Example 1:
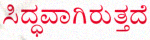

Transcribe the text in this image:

ಸಿದ್ಧವಾಗಿರುತ್ತದೆ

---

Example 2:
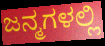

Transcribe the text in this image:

ಜನ್ಮಗಳಲ್ಲಿ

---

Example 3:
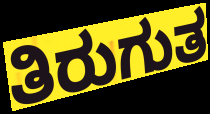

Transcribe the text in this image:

ತಿರುಗುತ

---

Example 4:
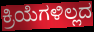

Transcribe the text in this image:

ಕ್ರಿಯೆಗಳಿಲ್ಲದ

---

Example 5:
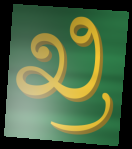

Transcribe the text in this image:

ಖ್ರಿ